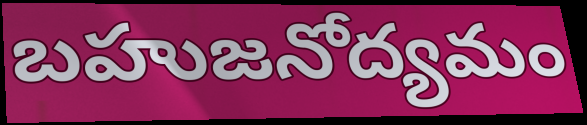
బహుజనోద్యమం